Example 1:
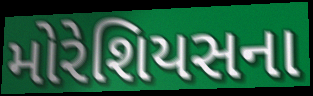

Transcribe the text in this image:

મોરેશિયસના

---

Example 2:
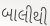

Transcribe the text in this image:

બાલીથી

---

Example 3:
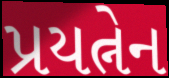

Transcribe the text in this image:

પ્રયત્નેન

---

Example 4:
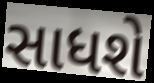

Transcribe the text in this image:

સાધશે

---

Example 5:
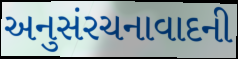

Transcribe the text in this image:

અનુસંરચનાવાદની